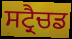
ਸਟ੍ਰੈਚਡ